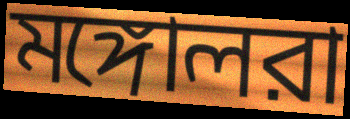
মঙ্গোলরা